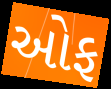
ઓફ